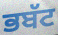
ਭਬੱਟ